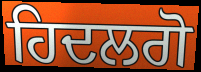
ਹਿਦਲਗੋ